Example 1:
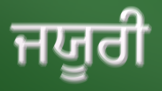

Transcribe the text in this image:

ਜਯੂਰੀ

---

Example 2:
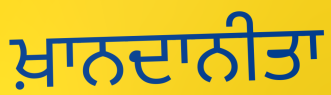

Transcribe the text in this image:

ਖ਼ਾਨਦਾਨੀਤਾ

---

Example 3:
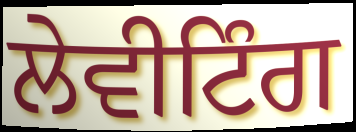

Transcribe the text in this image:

ਲੇਵੀਟਿੰਗ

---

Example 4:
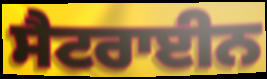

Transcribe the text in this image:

ਸੈਟਰਾਈਨ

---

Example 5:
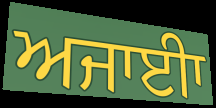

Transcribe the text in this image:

ਅਜਾਈਾ